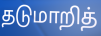
தடுமாறித்